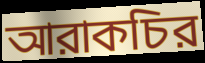
আরাকচির